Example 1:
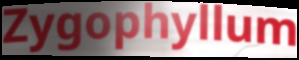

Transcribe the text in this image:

Zygophyllum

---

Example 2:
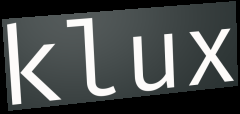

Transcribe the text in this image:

klux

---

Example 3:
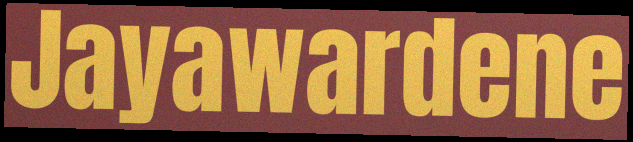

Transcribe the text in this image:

Jayawardene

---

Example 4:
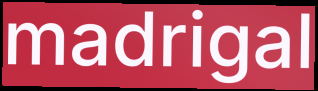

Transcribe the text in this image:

madrigal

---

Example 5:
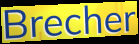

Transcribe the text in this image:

Brecher